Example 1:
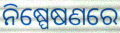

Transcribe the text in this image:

ନିଷ୍ପେଷଣରେ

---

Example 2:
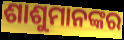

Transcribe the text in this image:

ଶାଶୁମାନଙ୍କର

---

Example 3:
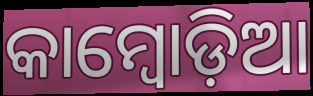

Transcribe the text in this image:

କାମ୍ବୋଡ଼ିଆ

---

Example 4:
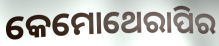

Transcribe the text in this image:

କେମୋଥେରାପିର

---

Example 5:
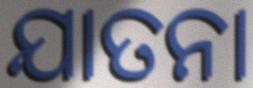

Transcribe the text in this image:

ଯାତନା